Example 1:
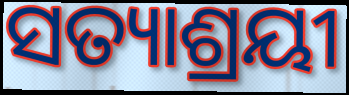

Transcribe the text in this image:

ସତ୍ୟାଶ୍ରୟୀ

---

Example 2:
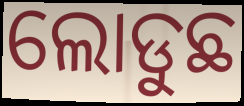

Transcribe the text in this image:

ଲୋଡୁଛ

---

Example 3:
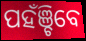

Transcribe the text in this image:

ପହଁଞ୍ଚିବେ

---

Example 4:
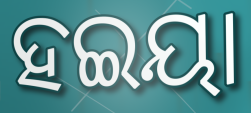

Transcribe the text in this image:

ହଇୟା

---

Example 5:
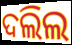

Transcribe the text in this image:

ଦଲିଲ